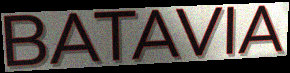
BATAVIA